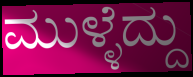
ಮುಳ್ಳೆದ್ದು